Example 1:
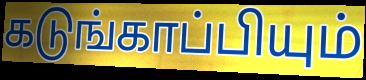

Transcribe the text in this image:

கடுங்காப்பியும்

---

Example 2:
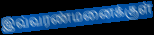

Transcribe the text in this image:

இவ்வரண்மனைக்குள்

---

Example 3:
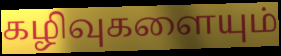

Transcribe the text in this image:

கழிவுகளையும்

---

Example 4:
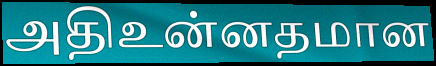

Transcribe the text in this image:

அதிஉன்னதமான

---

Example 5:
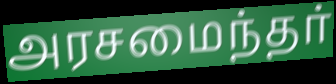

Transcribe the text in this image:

அரசமைந்தர்